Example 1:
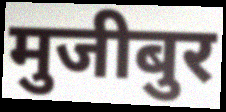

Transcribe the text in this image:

मुजीबुर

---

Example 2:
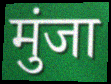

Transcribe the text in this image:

मुंजा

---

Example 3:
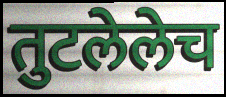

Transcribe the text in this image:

तुटलेलेच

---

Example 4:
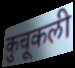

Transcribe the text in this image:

कुचूकली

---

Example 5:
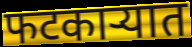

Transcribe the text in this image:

फटकाऱ्यात